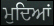
ਮੁਦਿਆਂ